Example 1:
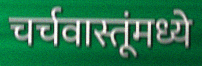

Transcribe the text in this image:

चर्चवास्तूंमध्ये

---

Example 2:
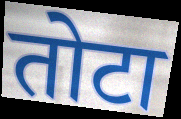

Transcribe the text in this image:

तोटा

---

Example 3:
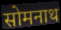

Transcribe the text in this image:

सोमनाथ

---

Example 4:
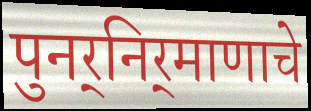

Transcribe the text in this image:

पुनर्निर्माणाचे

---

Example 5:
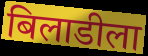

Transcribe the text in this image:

बिलाडीला